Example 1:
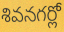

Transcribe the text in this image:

శివనగర్లో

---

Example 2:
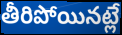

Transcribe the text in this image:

తీరిపోయినట్లే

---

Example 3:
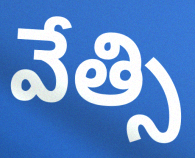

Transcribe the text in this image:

వేత్సి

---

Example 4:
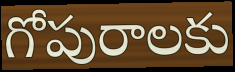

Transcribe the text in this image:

గోపురాలకు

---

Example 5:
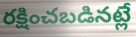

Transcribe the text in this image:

రక్షించబడినట్లే